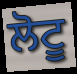
ਲੋਟੂ